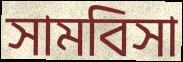
সামবিসা